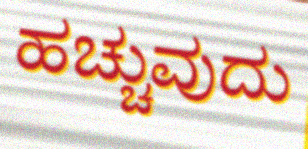
ಹಚ್ಚುವುದು